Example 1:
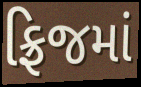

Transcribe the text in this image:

ફ્રિજમાં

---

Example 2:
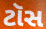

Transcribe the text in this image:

ટૉસ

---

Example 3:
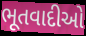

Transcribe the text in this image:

ભૂતવાદીઓ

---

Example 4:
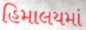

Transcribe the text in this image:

હિમાલયમાં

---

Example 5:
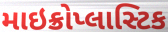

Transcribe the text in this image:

માઇક્રોપ્લાસ્ટિક